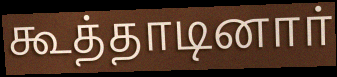
கூத்தாடினார்